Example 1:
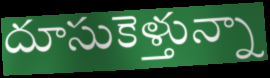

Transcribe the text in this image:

దూసుకెళ్తున్నా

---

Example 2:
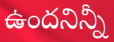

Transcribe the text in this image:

ఉందనిన్నీ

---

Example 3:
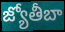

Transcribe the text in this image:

జ్యోతీబా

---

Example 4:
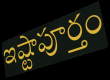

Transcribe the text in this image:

ఇష్టాపూర్తం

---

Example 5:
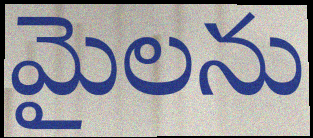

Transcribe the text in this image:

మైలను